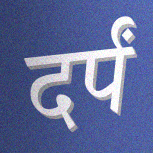
दर्पं